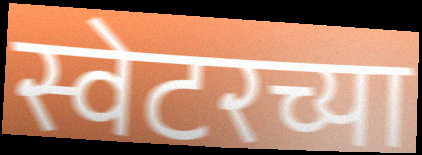
स्वेटरच्या